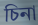
চিনা